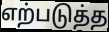
எற்படுத்த